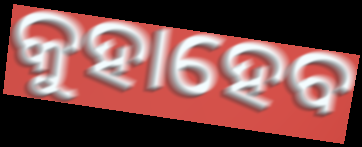
କୁହାହେବ